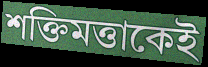
শক্তিমত্তাকেই